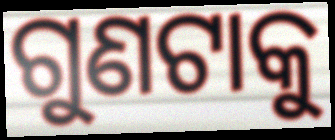
ଗୁଣଟାକୁ